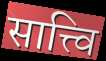
सात्त्वि